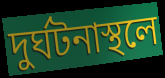
দুর্ঘটনাস্থলে